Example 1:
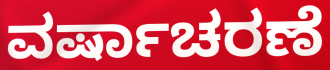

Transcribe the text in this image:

ವರ್ಷಾಚರಣೆ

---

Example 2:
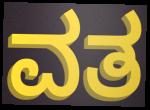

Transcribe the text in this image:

ವತ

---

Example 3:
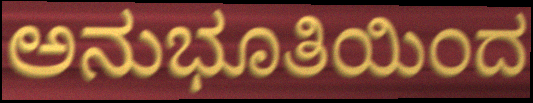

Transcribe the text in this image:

ಅನುಭೂತಿಯಿಂದ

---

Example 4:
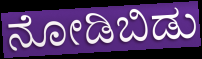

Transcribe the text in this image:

ನೋಡಿಬಿಡು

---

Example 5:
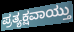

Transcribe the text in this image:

ಪ್ರತ್ಯಕ್ಷವಾಯ್ತು